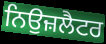
ਨਿਉਜ਼ਲੈਟਰ